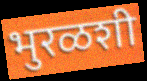
भुरळशी